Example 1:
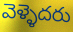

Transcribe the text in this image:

వెళ్ళెదరు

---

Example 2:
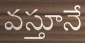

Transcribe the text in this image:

వస్తూనే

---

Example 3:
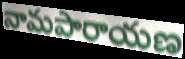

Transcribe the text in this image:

నామపారాయణ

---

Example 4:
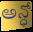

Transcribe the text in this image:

అన్ధో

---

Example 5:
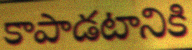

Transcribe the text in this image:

కాపాడటానికి